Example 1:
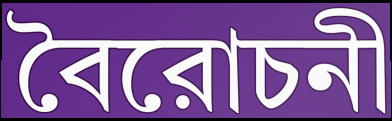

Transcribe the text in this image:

বৈরোচনী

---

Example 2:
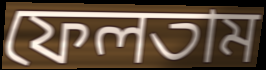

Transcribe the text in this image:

ফেলতাম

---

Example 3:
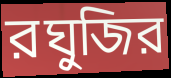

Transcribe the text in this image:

রঘুজির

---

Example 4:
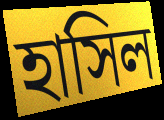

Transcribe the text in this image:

হাসিল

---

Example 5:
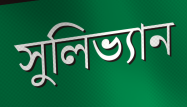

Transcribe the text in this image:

সুলিভ্যান